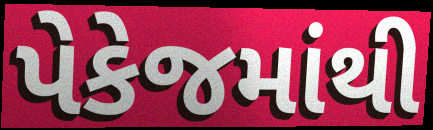
પેકેજમાંથી